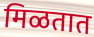
मिळतात